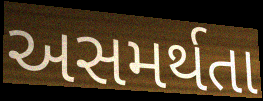
અસમર્થતા